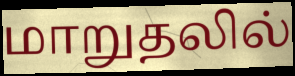
மாறுதலில்